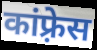
कांफ़्रेस